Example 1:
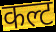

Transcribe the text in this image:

कल्ट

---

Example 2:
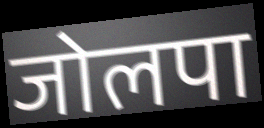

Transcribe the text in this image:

जोलपा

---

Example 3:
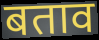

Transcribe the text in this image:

बताव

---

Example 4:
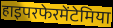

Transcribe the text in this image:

हाइपरफेरमेंटेमिया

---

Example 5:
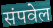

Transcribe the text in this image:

संपवेल